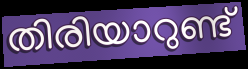
തിരിയാറുണ്ട്